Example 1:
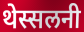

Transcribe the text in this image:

थेस्सलनी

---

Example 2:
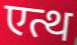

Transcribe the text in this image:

एत्थ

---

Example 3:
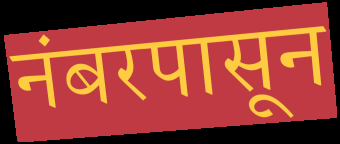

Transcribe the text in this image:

नंबरपासून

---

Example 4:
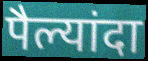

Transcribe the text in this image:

पैल्यांदा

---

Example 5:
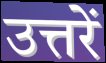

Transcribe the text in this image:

उत्तरें